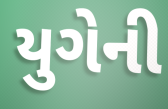
યુગેની